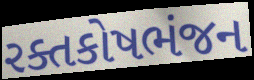
રક્તકોષભંજન